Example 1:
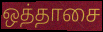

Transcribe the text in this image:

ஒத்தாசை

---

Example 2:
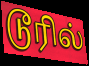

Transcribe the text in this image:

டூரில்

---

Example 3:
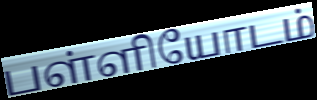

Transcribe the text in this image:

பள்ளியோடம்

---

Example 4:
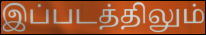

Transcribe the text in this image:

இப்படத்திலும்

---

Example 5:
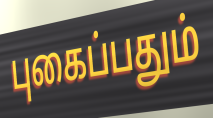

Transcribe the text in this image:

புகைப்பதும்